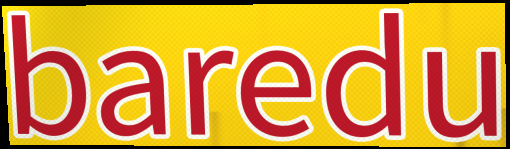
baredu